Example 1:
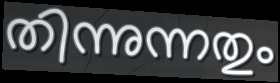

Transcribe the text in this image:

തിന്നുന്നതും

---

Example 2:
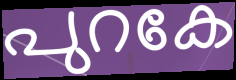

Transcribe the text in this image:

പുറകേ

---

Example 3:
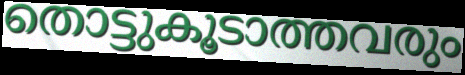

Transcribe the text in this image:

തൊട്ടുകൂടാത്തവരും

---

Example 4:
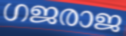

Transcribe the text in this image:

ഗജരാജ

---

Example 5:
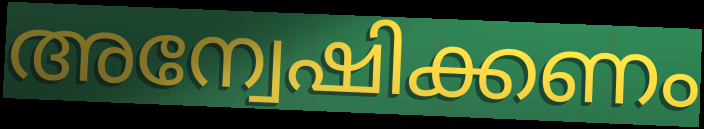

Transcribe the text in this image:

അന്വേഷിക്കണം